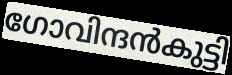
ഗോവിന്ദൻകുട്ടി